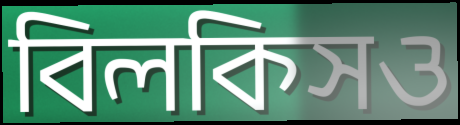
বিলকিসও